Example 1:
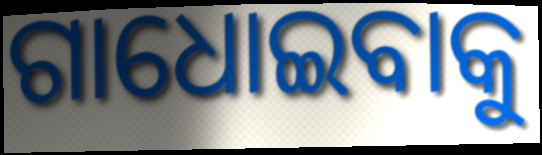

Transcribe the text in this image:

ଗାଧୋଇବାକୁ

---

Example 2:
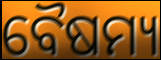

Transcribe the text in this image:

ବୈଷମ୍ୟ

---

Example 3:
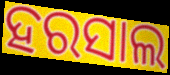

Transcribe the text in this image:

ହରସାଲ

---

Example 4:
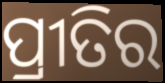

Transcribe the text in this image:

ପ୍ରୀତିର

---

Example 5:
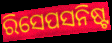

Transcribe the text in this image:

ରିସେପସନିଷ୍ଟ